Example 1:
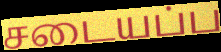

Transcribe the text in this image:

சடையப்ப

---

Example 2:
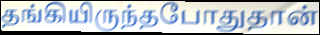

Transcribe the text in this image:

தங்கியிருந்தபோதுதான்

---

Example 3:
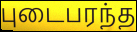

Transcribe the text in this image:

புடைபரந்த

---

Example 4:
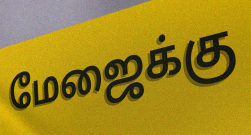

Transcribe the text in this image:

மேஜைக்கு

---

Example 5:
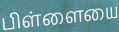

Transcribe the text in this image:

பிள்ளையை